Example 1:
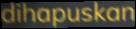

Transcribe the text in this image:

dihapuskan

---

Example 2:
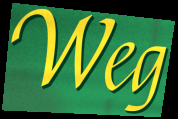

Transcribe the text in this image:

Weg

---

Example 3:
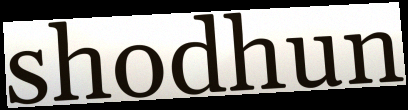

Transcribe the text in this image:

shodhun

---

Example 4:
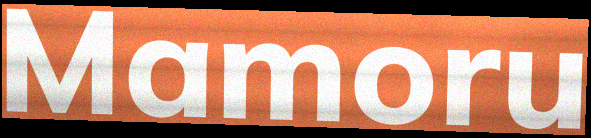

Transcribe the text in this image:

Mamoru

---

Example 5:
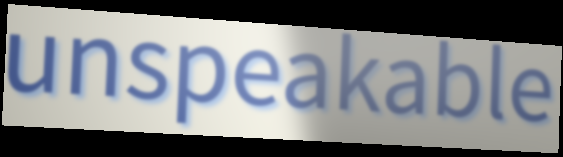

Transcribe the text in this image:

unspeakable